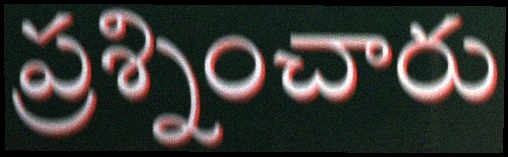
ప్రశ్నించారు